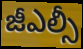
జీఎల్సీ